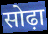
सोढ़ा